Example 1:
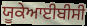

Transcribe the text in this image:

ਯੂਕੇਆਈਬੀਸੀ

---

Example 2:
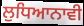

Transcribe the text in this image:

ਲੁਧਿਆਨਾਵੀ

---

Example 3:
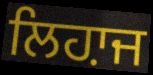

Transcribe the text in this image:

ਲਿਹ਼ਾਜ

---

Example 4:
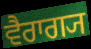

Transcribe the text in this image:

ਵੈਰਾਗ੍ਯ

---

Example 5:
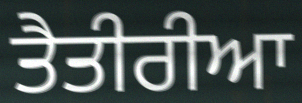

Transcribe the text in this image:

ਤੈਤੀਰੀਆ